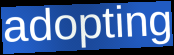
adopting